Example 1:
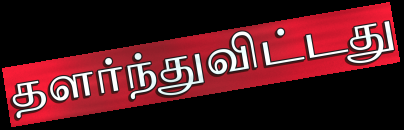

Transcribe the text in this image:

தளர்ந்துவிட்டது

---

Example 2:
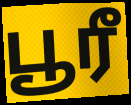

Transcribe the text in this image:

பூரீ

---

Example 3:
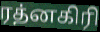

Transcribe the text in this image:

ரத்னகிரி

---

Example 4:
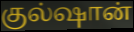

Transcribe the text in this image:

குல்ஷான்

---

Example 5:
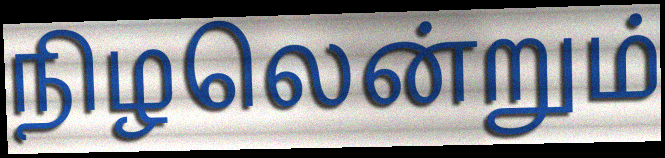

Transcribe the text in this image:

நிழலென்றும்